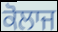
ਕੋਲਾਜ